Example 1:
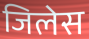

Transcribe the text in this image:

जिलेस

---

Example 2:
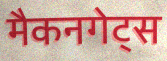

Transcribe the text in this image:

मैकनगेट्स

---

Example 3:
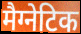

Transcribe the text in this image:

मैग्नेटिक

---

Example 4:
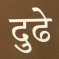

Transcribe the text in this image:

दुढे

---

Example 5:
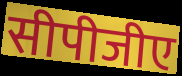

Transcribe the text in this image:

सीपीजीए